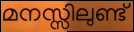
മനസ്സിലുണ്ട്